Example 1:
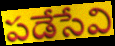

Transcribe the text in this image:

పడేసేవి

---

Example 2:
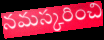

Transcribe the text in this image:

నమస్కరించి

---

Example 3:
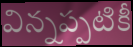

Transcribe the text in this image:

విన్నప్పటికీ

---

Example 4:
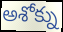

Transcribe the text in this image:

అశోక్ను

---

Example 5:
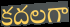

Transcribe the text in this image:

కదలగా